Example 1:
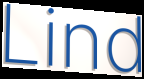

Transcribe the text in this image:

Lind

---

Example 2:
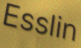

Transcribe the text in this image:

Esslin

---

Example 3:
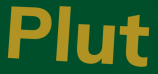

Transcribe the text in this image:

Plut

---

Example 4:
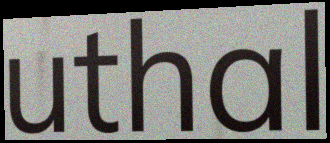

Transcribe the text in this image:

uthal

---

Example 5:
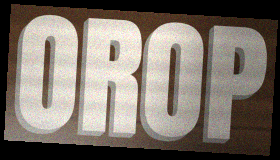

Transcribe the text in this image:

OROP